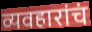
व्यवहारांचं